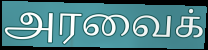
அரவைக்